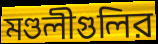
মণ্ডলীগুলির